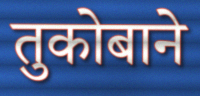
तुकोबाने